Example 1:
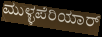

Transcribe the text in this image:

ಮುಳ್ಳಪೆರಿಯಾರ್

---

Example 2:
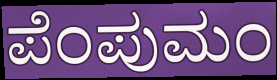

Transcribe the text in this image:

ಪೆಂಪುಮಂ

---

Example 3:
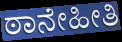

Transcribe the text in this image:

ಠಾನೇಹೀತಿ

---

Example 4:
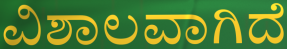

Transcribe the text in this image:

ವಿಶಾಲವಾಗಿದೆ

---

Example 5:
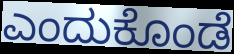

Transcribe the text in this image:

ಎಂದುಕೊಂಡೆ